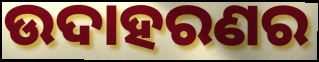
ଉଦାହରଣର